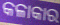
କଳାକାର